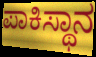
ಪಾಕಿಸ್ಥಾನ